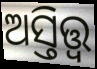
ଅସ୍ତିତ୍ତ୍ବ